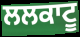
ਲਲਕਾਟੂ